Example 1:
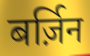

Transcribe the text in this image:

बर्ज़िन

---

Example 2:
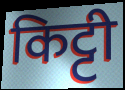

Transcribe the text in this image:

किट्टी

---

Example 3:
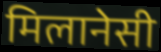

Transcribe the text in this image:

मिलानेसी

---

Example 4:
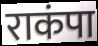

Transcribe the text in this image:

राकंपा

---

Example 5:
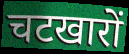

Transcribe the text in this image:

चटखारों